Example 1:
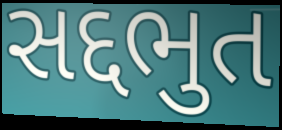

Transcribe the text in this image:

સદ્દભુત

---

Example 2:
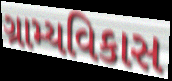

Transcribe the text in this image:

ગ્રામ્યવિકાસ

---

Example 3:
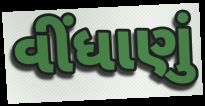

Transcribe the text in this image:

વીંધાણું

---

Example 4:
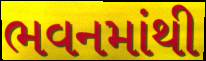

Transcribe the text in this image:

ભવનમાંથી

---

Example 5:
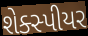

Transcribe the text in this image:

શેક્સ્પીયર